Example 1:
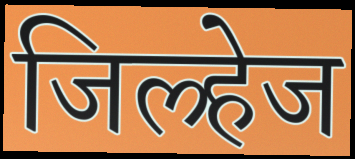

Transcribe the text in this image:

जिल्हेज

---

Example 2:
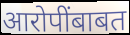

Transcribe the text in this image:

आरोपींबाबत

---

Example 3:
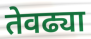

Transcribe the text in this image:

तेवढ्या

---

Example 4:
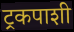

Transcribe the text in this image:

ट्रकपाशी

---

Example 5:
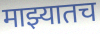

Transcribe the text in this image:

माझ्यातच